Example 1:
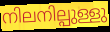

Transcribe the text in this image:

നിലനില്പുള്ളു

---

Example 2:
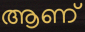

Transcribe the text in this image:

ആണ്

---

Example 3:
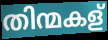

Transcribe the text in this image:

തിന്മകള്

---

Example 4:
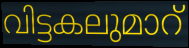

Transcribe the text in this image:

വിട്ടകലുമാറ്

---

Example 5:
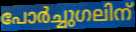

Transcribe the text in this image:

പോർച്ചുഗലിന്